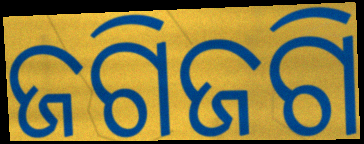
ଜଗିଜଗି